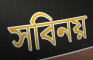
সবিনয়